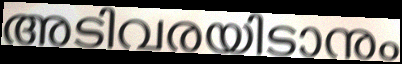
അടിവരയിടാനും